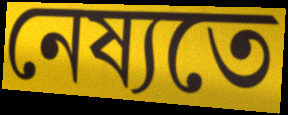
নেষ্যতে